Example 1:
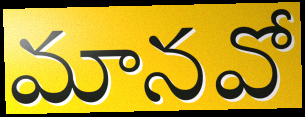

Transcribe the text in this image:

మానవో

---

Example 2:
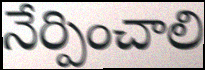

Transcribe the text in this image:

నేర్పించాలి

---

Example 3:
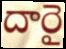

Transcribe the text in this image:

దారై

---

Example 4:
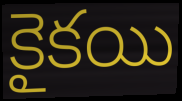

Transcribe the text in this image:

కైకయి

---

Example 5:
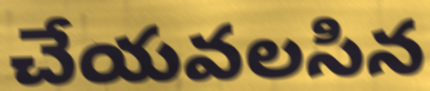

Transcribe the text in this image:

చేయవలసిన